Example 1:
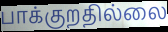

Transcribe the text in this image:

பாக்குறதில்லை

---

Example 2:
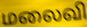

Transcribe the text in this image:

மலைவி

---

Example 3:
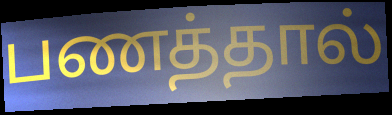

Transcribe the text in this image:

பணத்தால்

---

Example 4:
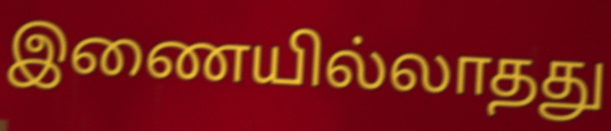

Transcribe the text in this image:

இணையில்லாதது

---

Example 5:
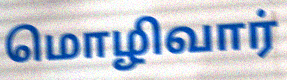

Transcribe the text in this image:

மொழிவார்